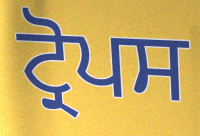
ਟ੍ਰੋਪਸ